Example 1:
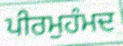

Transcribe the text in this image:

ਪੀਰਮੁਹੰਮਦ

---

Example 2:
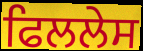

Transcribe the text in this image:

ਫਿਲਲੇਸ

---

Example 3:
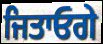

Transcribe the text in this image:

ਜਿਤਾਓਗੇ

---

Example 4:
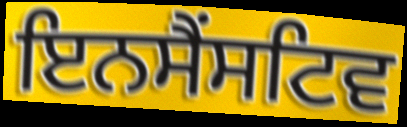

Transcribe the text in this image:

ਇਨਸੈਂਸਟਿਵ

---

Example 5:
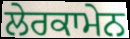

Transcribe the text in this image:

ਲੇਰਕਾਮੇਨ